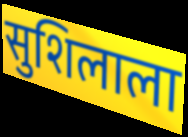
सुशिलाला